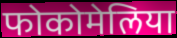
फोकोमेलिया